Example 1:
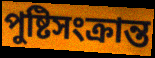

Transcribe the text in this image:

পুষ্টিসংক্রান্ত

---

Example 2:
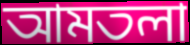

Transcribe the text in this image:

আমতলা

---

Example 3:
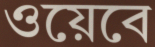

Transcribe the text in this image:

ওয়েবে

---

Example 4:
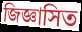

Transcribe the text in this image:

জিজ্ঞাসিত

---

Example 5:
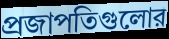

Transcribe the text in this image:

প্রজাপতিগুলোর